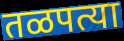
तळपत्या